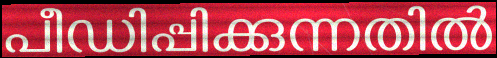
പീഡിപ്പിക്കുന്നതിൽ